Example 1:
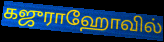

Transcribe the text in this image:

கஜுராஹோவில்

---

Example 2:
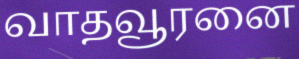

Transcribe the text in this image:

வாதவூரனை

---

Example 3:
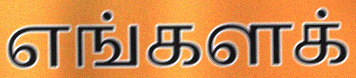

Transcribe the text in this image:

எங்களக்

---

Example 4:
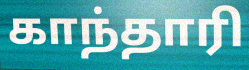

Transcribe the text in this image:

காந்தாரி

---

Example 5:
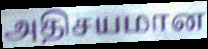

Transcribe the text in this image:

அதிசயமான